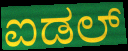
ಐಡಲ್